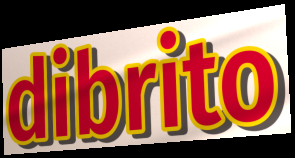
dibrito